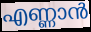
എണ്ണാൻ